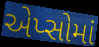
એપ્સોમાં